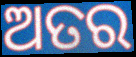
ଅତର